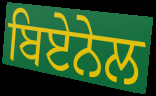
ਬਿਏਨੇਲ